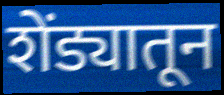
शेंड्यातून